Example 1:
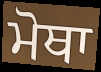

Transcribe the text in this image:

ਮੋਥਾ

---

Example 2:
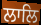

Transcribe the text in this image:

ਲਾਲਿ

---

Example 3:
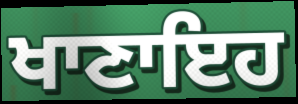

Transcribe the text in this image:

ਖਾਣਾਇਹ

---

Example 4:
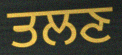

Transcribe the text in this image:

ਤਲਣ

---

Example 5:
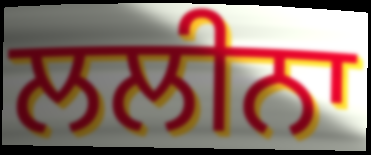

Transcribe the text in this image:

ਲਲੀਨਾ